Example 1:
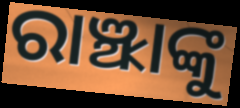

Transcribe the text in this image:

ରାଞ୍ଝାଙ୍କୁ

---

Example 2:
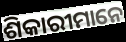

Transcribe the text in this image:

ଶିକାରୀମାନେ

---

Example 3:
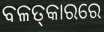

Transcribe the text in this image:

ବଳତ୍‌କାରରେ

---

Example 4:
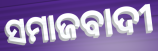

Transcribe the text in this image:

ସମାଜବାଦୀ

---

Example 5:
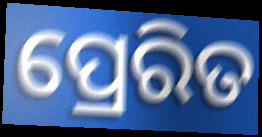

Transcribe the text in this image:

ପ୍ରେରିତ